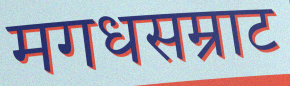
मगधसम्राट